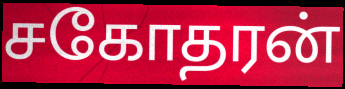
சகோதரன்